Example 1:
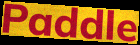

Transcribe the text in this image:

Paddle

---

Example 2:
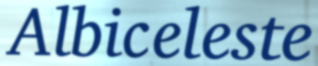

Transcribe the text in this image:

Albiceleste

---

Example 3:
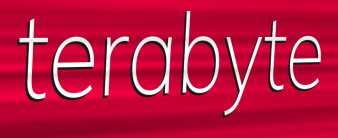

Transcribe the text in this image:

terabyte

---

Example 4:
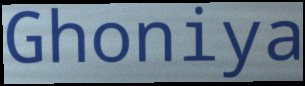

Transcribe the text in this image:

Ghoniya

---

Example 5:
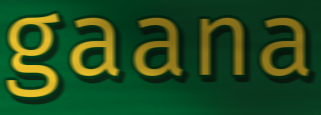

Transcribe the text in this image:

gaana